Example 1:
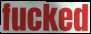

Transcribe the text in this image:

fucked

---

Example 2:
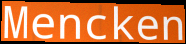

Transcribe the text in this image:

Mencken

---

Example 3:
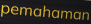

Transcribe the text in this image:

pemahaman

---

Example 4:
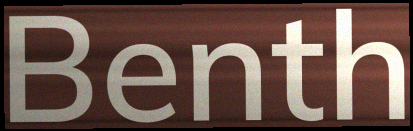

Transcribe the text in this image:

Benth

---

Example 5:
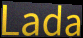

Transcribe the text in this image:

Lada